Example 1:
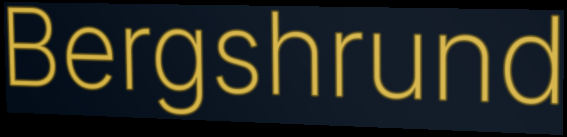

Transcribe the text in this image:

Bergshrund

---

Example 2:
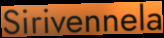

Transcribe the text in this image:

Sirivennela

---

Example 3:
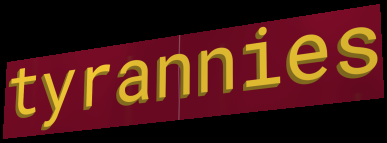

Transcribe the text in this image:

tyrannies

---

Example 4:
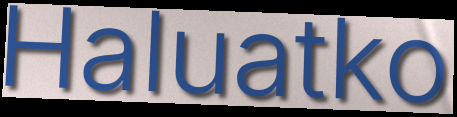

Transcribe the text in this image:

Haluatko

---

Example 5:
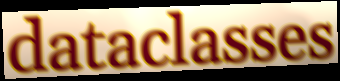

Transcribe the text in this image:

dataclasses